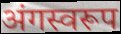
अंगस्वरूप